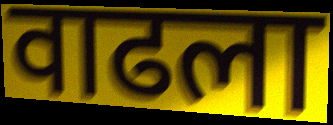
वाढला